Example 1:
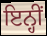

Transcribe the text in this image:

ਇਨ੍ਹੀਂ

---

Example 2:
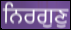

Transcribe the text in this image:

ਨਿਰਗੁਣੁ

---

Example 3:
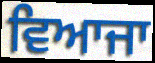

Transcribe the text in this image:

ਵਿਆਜਾ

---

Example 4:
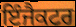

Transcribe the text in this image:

ਇੰਜੈਕਟਰ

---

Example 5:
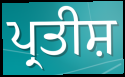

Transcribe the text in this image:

ਪ੍ਰਤੀਸ਼